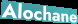
Alochane